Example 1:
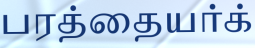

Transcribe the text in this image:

பரத்தையர்க்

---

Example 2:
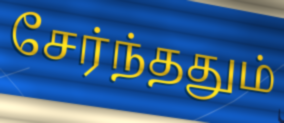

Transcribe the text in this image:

சேர்ந்ததும்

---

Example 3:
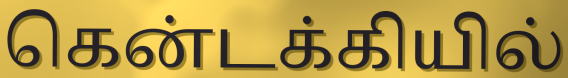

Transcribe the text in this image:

கென்டக்கியில்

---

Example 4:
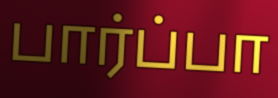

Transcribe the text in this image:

பார்ப்பா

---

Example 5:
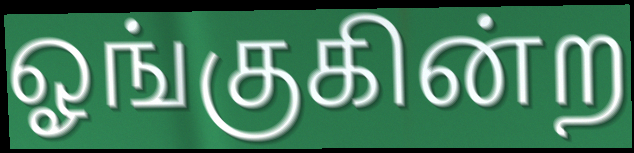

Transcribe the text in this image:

ஓங்குகின்ற